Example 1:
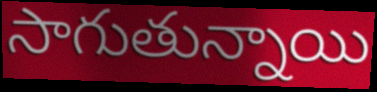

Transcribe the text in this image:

సాగుతున్నాయి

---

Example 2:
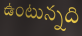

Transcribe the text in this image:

ఉంటున్నది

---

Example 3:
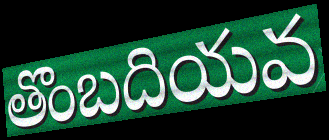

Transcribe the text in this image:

తొంబదియవ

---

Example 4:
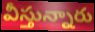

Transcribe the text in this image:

వీస్తున్నారు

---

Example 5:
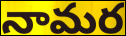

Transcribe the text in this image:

నామర